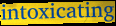
intoxicating